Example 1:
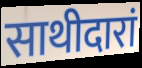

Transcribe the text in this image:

साथीदारां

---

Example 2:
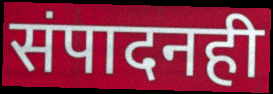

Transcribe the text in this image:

संपादनही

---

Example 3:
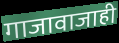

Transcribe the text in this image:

गाजावाजाही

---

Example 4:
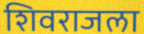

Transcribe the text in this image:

शिवराजला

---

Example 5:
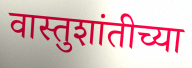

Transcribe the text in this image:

वास्तुशांतीच्या